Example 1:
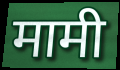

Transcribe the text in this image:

मामी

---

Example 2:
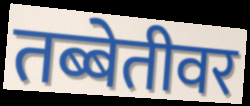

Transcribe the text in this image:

तब्बेतीवर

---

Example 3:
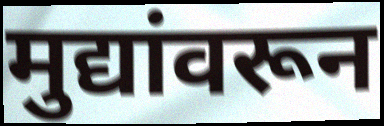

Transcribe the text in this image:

मुद्यांवरून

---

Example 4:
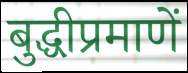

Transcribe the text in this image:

बुद्धीप्रमाणें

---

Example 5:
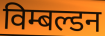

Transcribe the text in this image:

विम्बल्डन